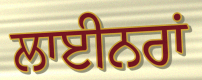
ਲਾਈਨਰਾਂ